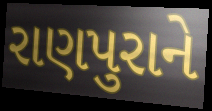
રાણપુરાને